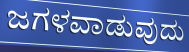
ಜಗಳವಾಡುವುದು